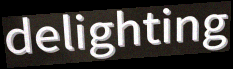
delighting